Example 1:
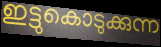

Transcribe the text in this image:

ഇട്ടുകൊടുക്കുന്ന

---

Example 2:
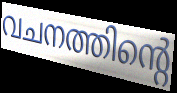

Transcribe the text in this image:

വചനത്തിന്റെ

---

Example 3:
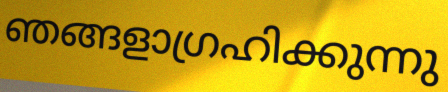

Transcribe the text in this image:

ഞങ്ങളാഗ്രഹിക്കുന്നു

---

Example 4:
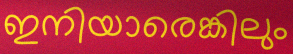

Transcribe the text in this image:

ഇനിയാരെങ്കിലും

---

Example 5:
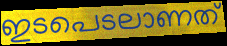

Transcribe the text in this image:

ഇടപെടലാണത്